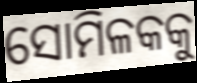
ସୋମିଳକକୁ